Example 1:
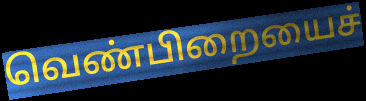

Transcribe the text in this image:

வெண்பிறையைச்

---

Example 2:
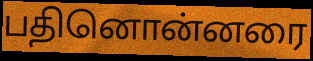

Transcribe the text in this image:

பதினொன்னரை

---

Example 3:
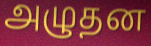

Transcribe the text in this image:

அழுதன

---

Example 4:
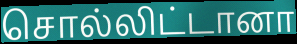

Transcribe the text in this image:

சொல்லிட்டானா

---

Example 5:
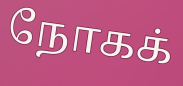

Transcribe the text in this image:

நோகக்